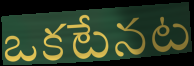
ఒకటేనట